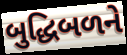
બુદ્ધિબળને